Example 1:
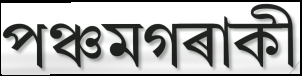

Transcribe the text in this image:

পঞ্চমগৰাকী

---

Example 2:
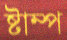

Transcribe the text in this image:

ষ্টাম্প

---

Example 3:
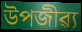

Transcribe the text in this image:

উপজীৱ্য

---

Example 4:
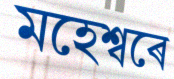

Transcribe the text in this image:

মহেশ্বৰে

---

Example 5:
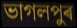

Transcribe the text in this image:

ভাগলপুৰ